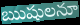
ఋషులనూ